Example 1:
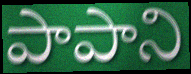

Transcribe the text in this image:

పాపాని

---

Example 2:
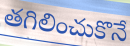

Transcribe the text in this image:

తగిలించుకొనే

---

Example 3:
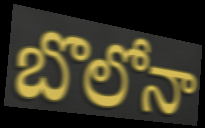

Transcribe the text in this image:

బొలోనా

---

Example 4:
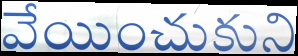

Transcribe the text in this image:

వేయించుకుని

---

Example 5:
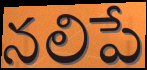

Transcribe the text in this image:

నలిపే